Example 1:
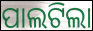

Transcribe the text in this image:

ପାଲଟିଲା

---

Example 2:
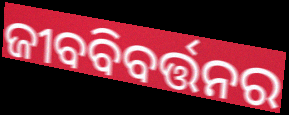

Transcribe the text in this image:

ଜୀବବିବର୍ତ୍ତନର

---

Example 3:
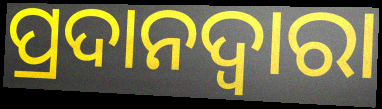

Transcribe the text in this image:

ପ୍ରଦାନଦ୍ୱାରା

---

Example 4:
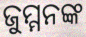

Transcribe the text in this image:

ଜୁମ୍ମନଙ୍କ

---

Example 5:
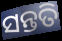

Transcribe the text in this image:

ସନ୍ତତି